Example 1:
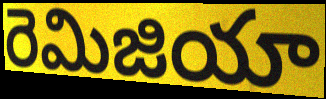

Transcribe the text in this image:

రెమిజియా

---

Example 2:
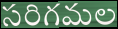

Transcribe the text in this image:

సరిగమల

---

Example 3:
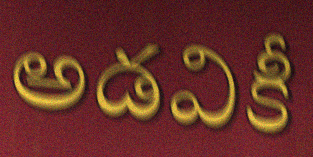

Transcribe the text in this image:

అడవికీ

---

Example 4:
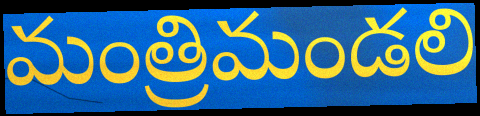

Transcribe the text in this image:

మంత్రిమండలి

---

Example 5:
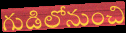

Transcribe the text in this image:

గుడిలోనుంచి